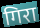
गिरा